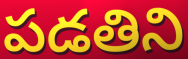
పడతిని